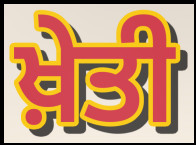
ਖ਼ੇਤੀ